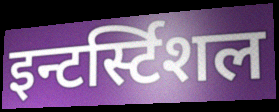
इन्टर्स्टिशल